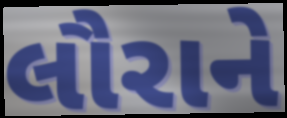
લૌરાને